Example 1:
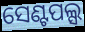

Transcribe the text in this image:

ସେଣ୍ଟପଲ୍ସ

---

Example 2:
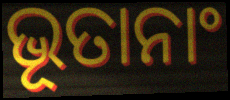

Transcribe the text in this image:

ଭୂତାନାଂ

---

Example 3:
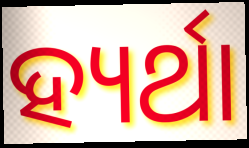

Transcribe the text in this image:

ହ୍ୟର୍ଥା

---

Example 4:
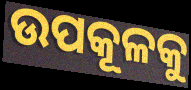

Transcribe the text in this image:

ଉପକୂଳକୁ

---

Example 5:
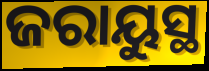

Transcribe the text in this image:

ଜରାୟୁସ୍ଥ